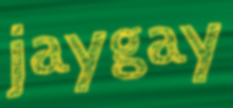
jaygay